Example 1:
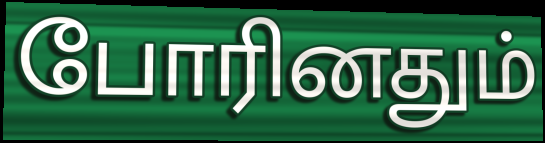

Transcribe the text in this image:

போரினதும்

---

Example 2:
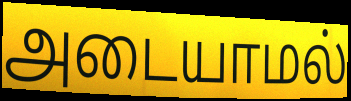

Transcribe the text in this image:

அடையாமல்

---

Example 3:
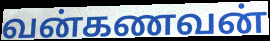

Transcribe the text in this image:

வன்கணவன்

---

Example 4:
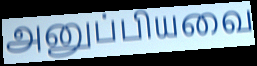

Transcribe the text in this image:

அனுப்பியவை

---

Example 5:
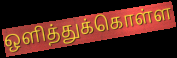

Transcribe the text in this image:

ஒளித்துக்கொள்ள